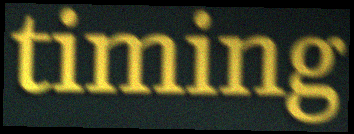
timing